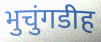
भुचुंगडीह